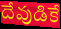
దేవుడికే